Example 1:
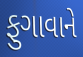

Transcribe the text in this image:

ફુગાવાને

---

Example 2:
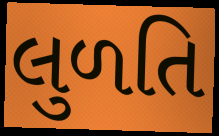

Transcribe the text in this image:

લુળતિ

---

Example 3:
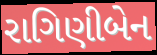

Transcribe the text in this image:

રાગિણીબેન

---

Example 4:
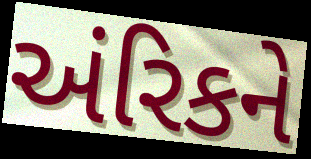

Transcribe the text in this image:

અંરિકને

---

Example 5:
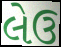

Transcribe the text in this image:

લેઉ